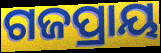
ଗଜପ୍ରାୟ